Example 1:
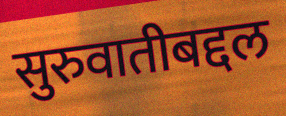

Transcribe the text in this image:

सुरुवातीबद्दल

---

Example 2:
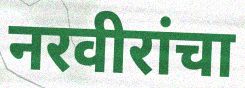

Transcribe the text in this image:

नरवीरांचा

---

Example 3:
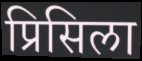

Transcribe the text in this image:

प्रिसिला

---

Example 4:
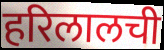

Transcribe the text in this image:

हरिलालची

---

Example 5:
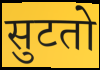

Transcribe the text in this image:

सुटतो